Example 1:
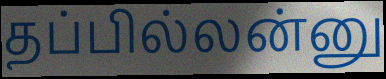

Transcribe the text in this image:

தப்பில்லன்னு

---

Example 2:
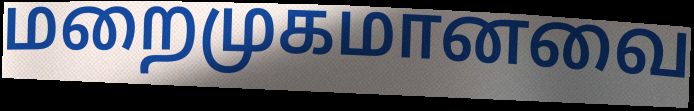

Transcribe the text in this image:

மறைமுகமானவை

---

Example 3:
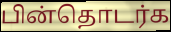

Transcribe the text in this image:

பின்தொடர்க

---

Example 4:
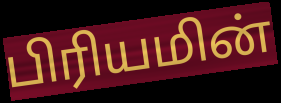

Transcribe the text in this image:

பிரியமின்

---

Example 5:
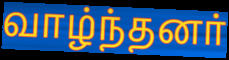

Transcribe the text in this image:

வாழ்ந்தனர்